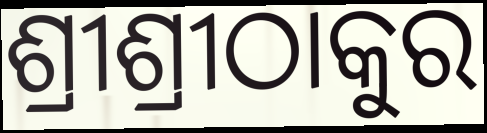
ଶ୍ରୀଶ୍ରୀଠାକୁର